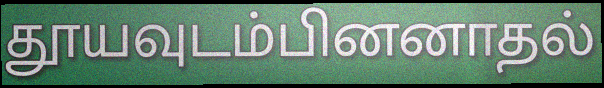
தூயவுடம்பினனாதல்